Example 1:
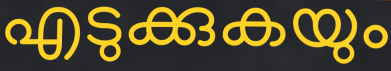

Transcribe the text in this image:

എടുക്കുകയും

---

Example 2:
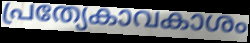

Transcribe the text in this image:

പ്രത്യേകാവകാശം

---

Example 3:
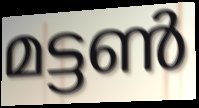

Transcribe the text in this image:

മട്ടൺ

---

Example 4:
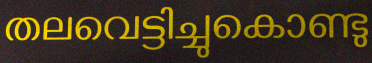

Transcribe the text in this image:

തലവെട്ടിച്ചുകൊണ്ടു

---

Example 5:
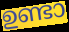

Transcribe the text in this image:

ഉണ്ടാ